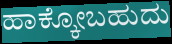
ಹಾಕ್ಕೋಬಹುದು